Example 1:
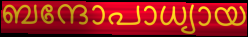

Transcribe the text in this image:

ബന്ദോപാധ്യായ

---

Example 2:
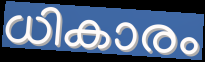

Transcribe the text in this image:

ധികാരം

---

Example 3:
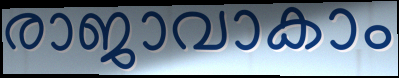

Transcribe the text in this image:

രാജാവാകാം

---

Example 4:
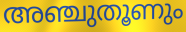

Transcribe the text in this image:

അഞ്ചുതൂണും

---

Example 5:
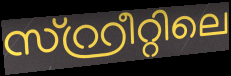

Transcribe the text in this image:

സ്റ്റ്രീറ്റിലെ